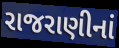
રાજરાણીનાં